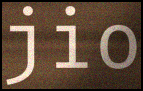
jio